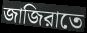
জাজিরাতে